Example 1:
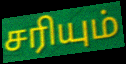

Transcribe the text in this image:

சரியும்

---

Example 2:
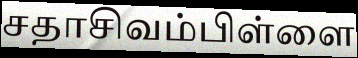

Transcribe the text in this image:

சதாசிவம்பிள்ளை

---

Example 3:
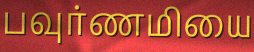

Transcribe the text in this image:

பவுர்ணமியை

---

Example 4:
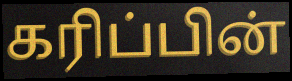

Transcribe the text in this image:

கரிப்பின்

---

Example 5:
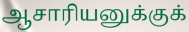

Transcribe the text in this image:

ஆசாரியனுக்குக்